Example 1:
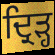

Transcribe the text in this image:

ਦ੍ਰਿੜ੍ਹ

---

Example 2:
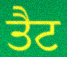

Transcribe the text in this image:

ਤੈਟ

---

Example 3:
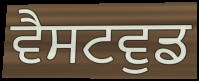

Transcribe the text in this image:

ਵੈਸਟਵੁਡ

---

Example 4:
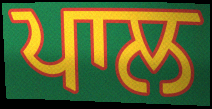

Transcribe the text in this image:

ਪਾਲ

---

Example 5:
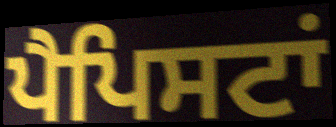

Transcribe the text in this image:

ਪੈਪਿਸਟਾਂ